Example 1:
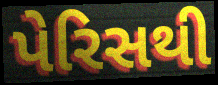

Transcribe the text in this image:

પેરિસથી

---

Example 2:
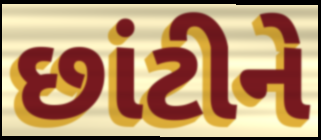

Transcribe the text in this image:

છાંટીને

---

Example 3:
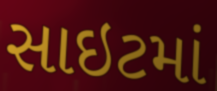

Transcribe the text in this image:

સાઇટમાં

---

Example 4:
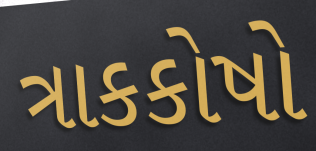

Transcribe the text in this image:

ત્રાકકોષો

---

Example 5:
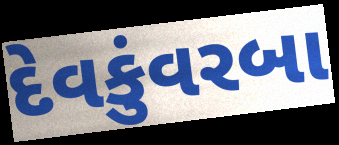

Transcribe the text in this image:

દેવકુંવરબા